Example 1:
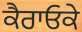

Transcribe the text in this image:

ਕੈਰਾਓਕੇ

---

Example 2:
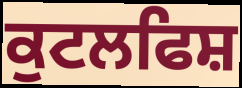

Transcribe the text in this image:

ਕੁਟਲਫਿਸ਼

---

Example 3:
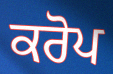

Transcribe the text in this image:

ਕਰੋਪ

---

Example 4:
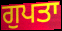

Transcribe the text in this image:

ਗੁਪਤਾ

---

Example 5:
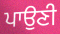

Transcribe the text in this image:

ਪਾਉਣੀ